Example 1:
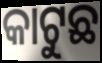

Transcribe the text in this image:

କାଟୁଛ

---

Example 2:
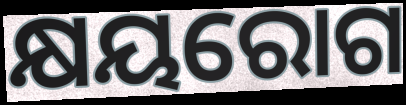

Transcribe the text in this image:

କ୍ଷୟରୋଗ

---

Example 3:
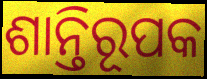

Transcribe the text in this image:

ଶାନ୍ତିରୂପକ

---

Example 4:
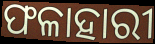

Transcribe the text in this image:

ଫଳାହାରୀ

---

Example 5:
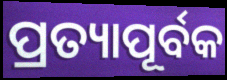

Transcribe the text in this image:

ପ୍ରତ୍ୟାପୂର୍ବକ